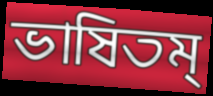
ভাষিতম্